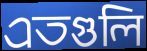
এতগুলি